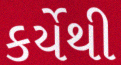
કર્યેથી